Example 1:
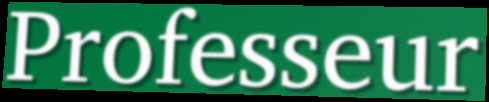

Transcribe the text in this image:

Professeur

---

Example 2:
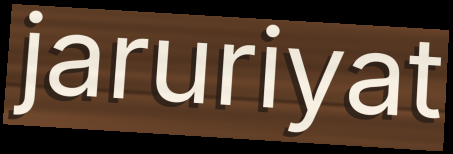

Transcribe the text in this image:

jaruriyat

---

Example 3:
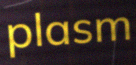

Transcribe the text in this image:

plasm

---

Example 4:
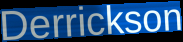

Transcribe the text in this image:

Derrickson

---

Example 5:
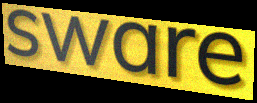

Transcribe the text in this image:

sware